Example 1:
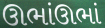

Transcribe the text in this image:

ઊભાંઊભાં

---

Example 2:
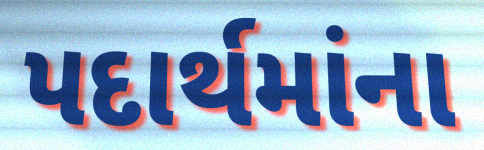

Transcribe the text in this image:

પદાર્થમાંના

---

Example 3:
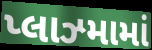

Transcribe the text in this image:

પ્લાઝ્મામાં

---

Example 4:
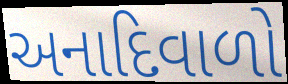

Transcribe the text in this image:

અનાદિવાળો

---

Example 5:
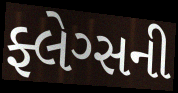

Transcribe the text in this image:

ફ્લેગ્સની